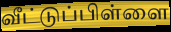
வீட்டுப்பிள்ளை